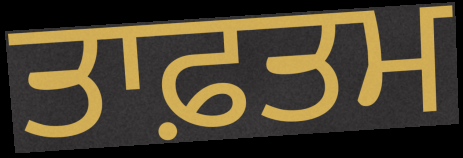
ਤਾਫ਼ਤਮ